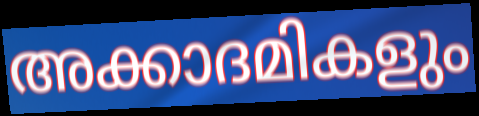
അക്കാദമികളും